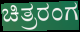
ಚಿತ್ರರಂಗ